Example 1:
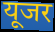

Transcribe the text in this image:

यूजर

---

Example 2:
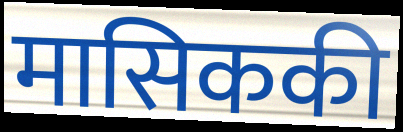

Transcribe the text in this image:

मासिककी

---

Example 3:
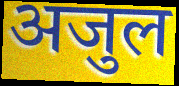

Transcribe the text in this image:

अजुल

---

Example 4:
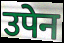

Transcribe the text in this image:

उपेन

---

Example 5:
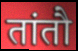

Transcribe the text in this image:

तांतौ